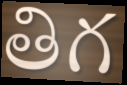
తిగ